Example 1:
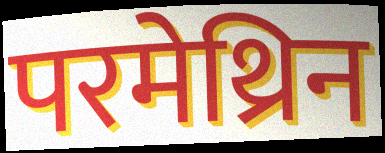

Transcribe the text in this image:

परमेथ्रिन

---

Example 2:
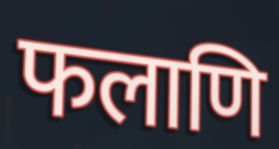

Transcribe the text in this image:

फलाणि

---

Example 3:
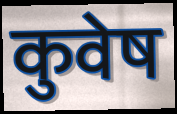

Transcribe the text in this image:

कुवेष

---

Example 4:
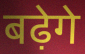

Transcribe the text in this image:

बढ़ेगे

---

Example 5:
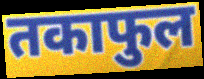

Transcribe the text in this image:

तकाफुल